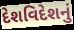
દેશવિદેશનું